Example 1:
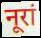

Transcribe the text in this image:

नूरां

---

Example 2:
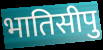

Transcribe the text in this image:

भातिसीपु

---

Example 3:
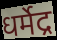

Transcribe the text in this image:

धर्मेद्र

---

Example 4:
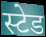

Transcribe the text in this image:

स्टेड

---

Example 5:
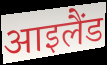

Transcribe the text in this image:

आइलैंड